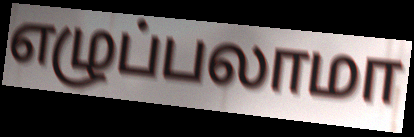
எழுப்பலாமா